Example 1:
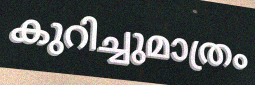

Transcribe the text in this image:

കുറിച്ചുമാത്രം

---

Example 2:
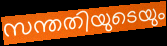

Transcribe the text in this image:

സന്തതിയുടെയും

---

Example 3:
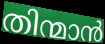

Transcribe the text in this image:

തിന്മാൻ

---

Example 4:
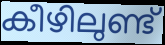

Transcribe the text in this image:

കീഴിലുണ്ട്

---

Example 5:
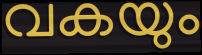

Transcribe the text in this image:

വകയും